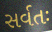
સર્વતઃ